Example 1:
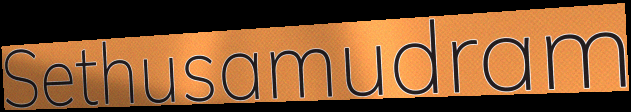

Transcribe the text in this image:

Sethusamudram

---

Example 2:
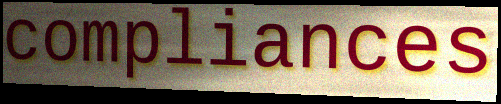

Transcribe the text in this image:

compliances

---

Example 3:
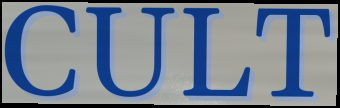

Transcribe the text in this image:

CULT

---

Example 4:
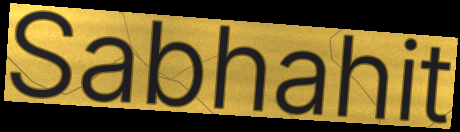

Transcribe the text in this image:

Sabhahit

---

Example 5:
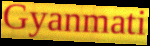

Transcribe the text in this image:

Gyanmati